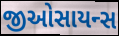
જીઓસાયન્સ